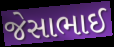
જેસાભાઈ